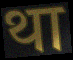
था